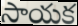
సాయక